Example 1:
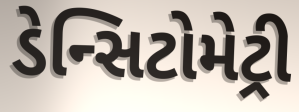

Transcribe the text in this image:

ડેન્સિટોમેટ્રી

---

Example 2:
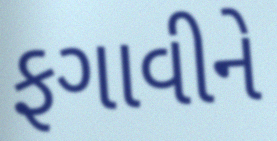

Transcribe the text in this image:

ફગાવીને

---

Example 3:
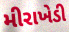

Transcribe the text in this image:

મીરાખેડી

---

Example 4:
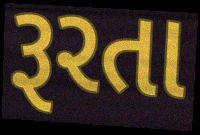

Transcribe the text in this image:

રૂરતા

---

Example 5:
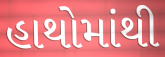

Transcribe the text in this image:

હાથોમાંથી